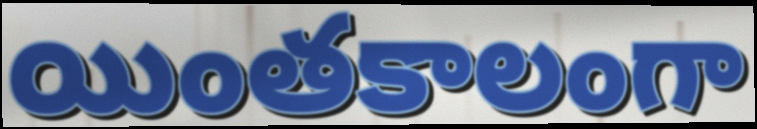
యింతకాలంగా